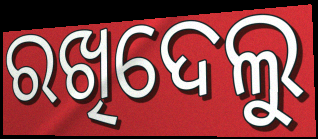
ରଖିଦେଲୁ